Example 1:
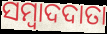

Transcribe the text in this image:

ସମ୍ବାଦଦାତା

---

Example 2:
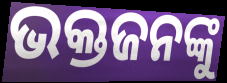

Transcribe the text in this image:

ଭକ୍ତଜନଙ୍କୁ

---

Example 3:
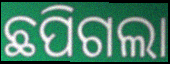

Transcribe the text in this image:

ଛପିଗଲା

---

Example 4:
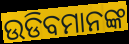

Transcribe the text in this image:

ଉଡିବମାନଙ୍କ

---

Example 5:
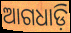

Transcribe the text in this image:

ଆଗଧାଡ଼ି